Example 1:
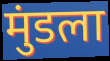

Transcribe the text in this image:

मुंडला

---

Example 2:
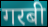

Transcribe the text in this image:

गरबी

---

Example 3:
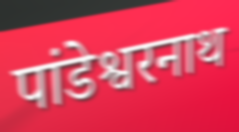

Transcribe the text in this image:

पांडेश्वरनाथ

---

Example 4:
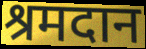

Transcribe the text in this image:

श्रमदान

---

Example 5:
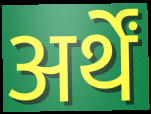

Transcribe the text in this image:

अर्थें